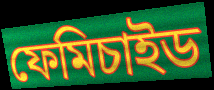
ফেমিচাইড